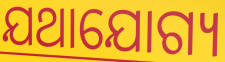
ଯଥାଯୋଗ୍ୟ